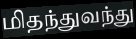
மிதந்துவந்து